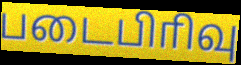
படைபிரிவு